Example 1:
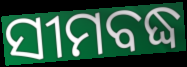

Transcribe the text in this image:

ସୀମବଦ୍ଧ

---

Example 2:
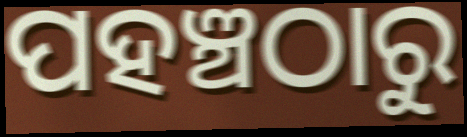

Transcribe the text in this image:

ପହଞ୍ଚଠାରୁ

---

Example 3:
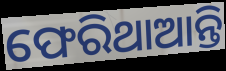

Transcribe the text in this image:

ଫେରିଥାଆନ୍ତି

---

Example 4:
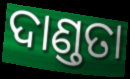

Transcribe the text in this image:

ଦାଣ୍ଡତା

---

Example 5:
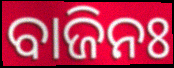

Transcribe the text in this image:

ବାଜିନଃ